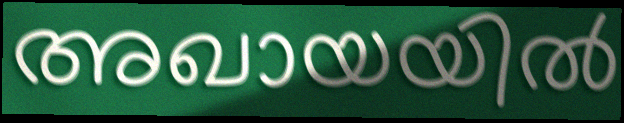
അഖായയിൽ